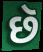
છૅ